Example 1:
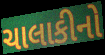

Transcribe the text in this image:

ચાલાકીનો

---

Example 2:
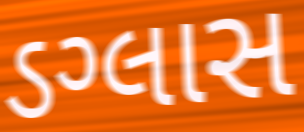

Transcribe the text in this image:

ડગ્લાસ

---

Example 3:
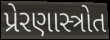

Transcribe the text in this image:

પ્રેરણાસ્ત્રોત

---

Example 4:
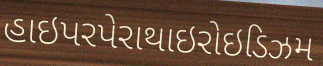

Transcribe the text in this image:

હાઇપરપેરાથાઇરોઇડિઝમ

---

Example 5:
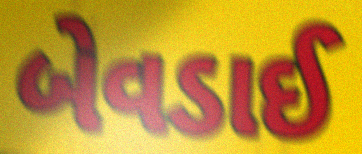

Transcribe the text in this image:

બેવડાઈ